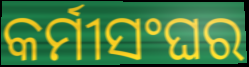
କର୍ମୀସଂଘର